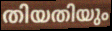
തിയതിയും